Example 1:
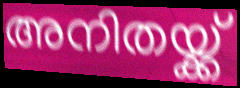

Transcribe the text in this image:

അനിതയ്ക്ക്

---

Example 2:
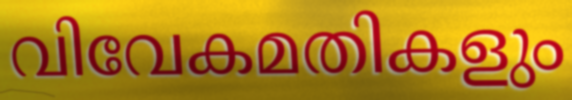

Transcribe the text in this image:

വിവേകമതികളും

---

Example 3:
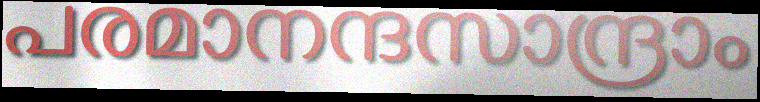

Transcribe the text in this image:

പരമാനന്ദസാന്ദ്രാം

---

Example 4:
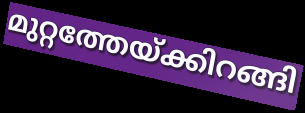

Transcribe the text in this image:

മുറ്റത്തേയ്ക്കിറങ്ങി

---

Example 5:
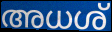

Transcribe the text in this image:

അധശ്